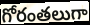
గోరంతలుగా